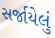
સર્જાયેલું